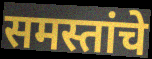
समस्तांचे